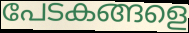
പേടകങ്ങളെ